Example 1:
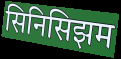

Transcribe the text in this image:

सिनिसिझम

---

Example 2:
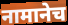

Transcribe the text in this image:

नामानेच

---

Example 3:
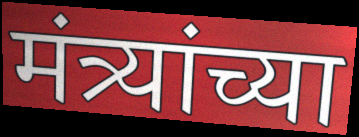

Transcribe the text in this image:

मंत्र्यांच्या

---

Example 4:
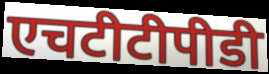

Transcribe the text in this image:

एचटीटीपीडी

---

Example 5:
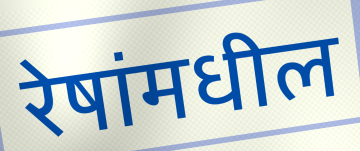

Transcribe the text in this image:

रेषांमधील